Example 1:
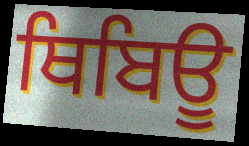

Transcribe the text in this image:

ਥਿਬਿਊ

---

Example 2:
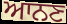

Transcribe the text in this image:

ਆਨਣ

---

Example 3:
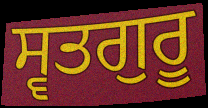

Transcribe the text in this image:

ਸ੍ਵਤਗੁਰੂ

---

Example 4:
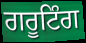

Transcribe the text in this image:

ਗਰੂਟਿੰਗ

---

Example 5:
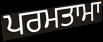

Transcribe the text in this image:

ਪਰਮਤਾਮਾ